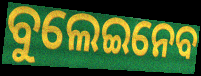
ବୁଲେଇନେବ